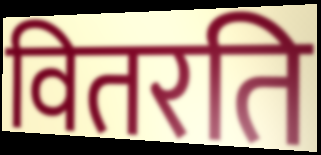
वितरति